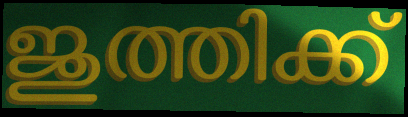
ജുത്തിക്ക്